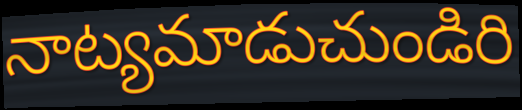
నాట్యమాడుచుండిరి